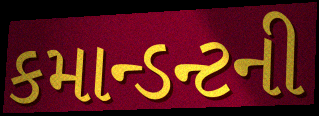
કમાન્ડન્ટની